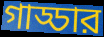
গাড্ডার